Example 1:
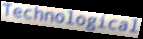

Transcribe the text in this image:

Technological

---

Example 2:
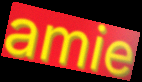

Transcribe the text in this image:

amie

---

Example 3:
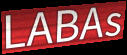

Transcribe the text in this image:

LABAs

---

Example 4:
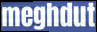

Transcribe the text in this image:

meghdut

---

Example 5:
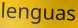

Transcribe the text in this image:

lenguas